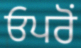
ਓਪਰੋਂ